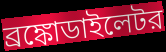
ব্রঙ্কোডাইলেটর